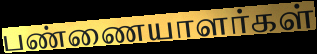
பண்ணையாளர்கள்